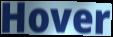
Hover